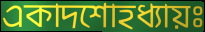
একাদশোহধ্যায়ঃ